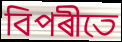
বিপৰীতে